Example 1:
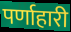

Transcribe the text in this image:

पर्णाहारी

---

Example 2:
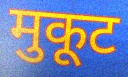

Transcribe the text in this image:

मुकूट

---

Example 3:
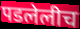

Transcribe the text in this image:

पडलेलीच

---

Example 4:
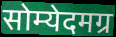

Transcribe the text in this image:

सोम्येदमग्र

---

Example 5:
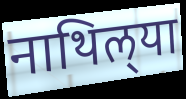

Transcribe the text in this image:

नाथिल्या